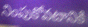
నింపుకోవటానికి